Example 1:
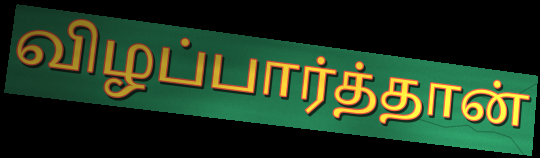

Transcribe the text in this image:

விழப்பார்த்தான்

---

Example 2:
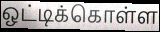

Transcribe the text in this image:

ஒட்டிக்கொள்ள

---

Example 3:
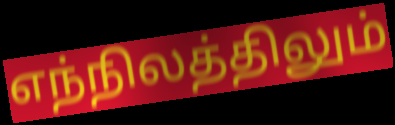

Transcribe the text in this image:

எந்நிலத்திலும்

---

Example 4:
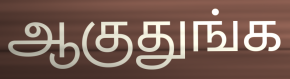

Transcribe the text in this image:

ஆகுதுங்க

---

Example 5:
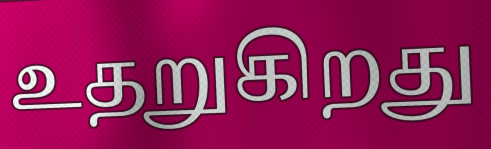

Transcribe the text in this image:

உதறுகிறது